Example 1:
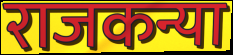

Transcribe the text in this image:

राजकन्या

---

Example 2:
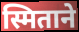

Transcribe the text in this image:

स्मिताने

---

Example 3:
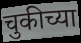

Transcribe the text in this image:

चुकीच्या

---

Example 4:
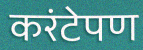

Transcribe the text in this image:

करंटेपण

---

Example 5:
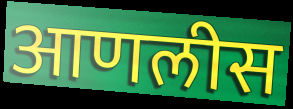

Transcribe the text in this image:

आणलीस